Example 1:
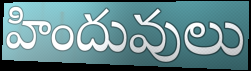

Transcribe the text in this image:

హిందువులు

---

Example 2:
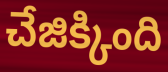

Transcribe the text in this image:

చేజిక్కింది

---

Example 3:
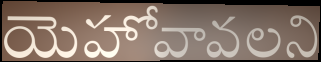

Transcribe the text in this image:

యెహోవావలని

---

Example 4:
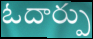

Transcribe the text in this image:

ఓదార్పు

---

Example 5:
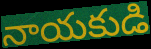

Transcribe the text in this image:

నాయకుడి